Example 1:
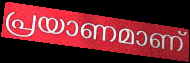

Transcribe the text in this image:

പ്രയാണമാണ്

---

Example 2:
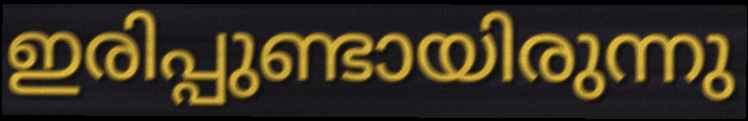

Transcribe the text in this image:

ഇരിപ്പുണ്ടായിരുന്നു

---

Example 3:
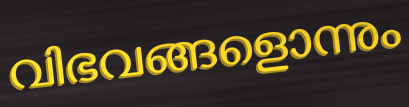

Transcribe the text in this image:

വിഭവങ്ങളൊന്നും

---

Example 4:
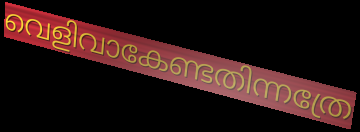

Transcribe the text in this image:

വെളിവാകേണ്ടതിന്നത്രേ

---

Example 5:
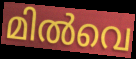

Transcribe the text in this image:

മിൽവെ